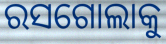
ରସଗୋଲାକୁ